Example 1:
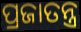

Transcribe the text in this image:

ପ୍ରଜାତନ୍ତ୍ର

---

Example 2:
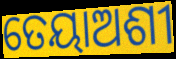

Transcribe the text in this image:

ତେୟାଅଶୀ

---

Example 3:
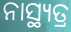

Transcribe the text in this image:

ନାସ୍ଥ୍ୟତ୍ର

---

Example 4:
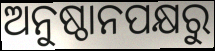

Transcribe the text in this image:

ଅନୁଷ୍ଠାନପକ୍ଷରୁ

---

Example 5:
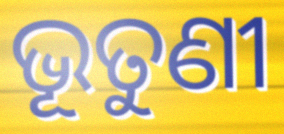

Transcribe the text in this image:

ଭୂତୁଣୀ